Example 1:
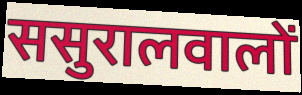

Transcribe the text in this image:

ससुरालवालों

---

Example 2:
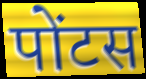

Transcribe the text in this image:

पोंटस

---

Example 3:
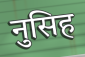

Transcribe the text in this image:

नुसिह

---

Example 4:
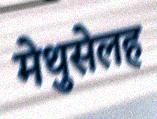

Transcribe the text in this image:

मेथुसेलह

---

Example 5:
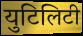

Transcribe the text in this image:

युटिलिटी